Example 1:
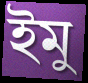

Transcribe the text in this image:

ইমু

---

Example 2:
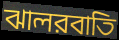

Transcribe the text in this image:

ঝালরবাতি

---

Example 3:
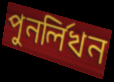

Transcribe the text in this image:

পুনর্লিখন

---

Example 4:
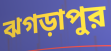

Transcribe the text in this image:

ঝগড়াপুর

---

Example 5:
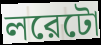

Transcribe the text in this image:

লরেটো